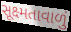
સૂક્ષ્મતાવાળું